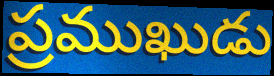
ప్రముఖుడు